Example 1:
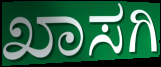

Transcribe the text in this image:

ಖಾಸಗಿ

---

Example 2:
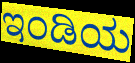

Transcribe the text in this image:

ಇಂಡಿಯ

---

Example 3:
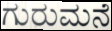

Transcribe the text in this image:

ಗುರುಮನೆ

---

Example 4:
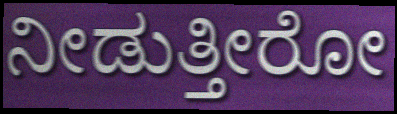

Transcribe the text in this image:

ನೀಡುತ್ತೀರೋ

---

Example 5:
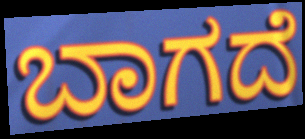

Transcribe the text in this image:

ಬಾಗದೆ